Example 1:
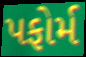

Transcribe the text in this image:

પફોર્મ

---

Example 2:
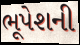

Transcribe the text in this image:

ભૂપેશની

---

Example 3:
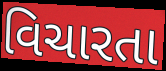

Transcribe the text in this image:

વિચારતા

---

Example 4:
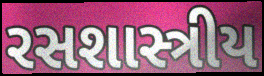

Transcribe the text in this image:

રસશાસ્ત્રીય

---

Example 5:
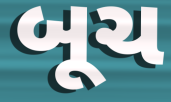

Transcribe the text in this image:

બૂચ